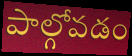
పాల్గోవడం